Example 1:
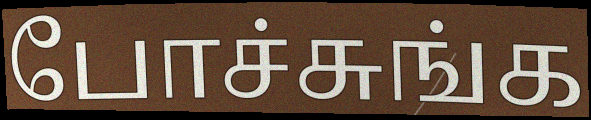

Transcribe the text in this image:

போச்சுங்க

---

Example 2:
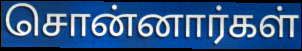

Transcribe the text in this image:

சொன்னார்கள்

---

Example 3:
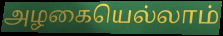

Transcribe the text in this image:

அழகையெல்லாம்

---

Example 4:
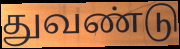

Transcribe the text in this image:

துவண்டு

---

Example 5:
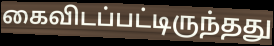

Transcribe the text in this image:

கைவிடப்பட்டிருந்தது